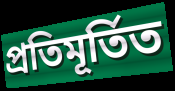
প্ৰতিমূৰ্তিত